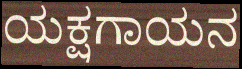
ಯಕ್ಷಗಾಯನ